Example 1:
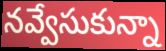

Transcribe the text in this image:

నవ్వేసుకున్నా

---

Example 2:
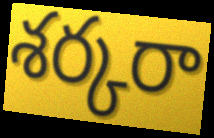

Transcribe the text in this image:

శర్కరా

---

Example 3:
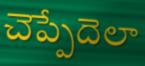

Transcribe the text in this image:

చెప్పేదెలా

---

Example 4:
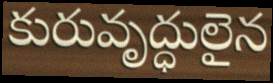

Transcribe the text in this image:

కురువృద్ధులైన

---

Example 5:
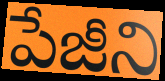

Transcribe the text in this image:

పేజీని